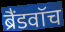
ब्रैंडवॉच